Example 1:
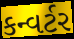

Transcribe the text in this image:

કન્વર્ટર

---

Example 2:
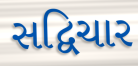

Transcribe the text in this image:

સદ્વિચાર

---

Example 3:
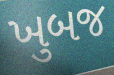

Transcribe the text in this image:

ખુબજ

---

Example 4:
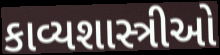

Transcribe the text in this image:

કાવ્યશાસ્ત્રીઓ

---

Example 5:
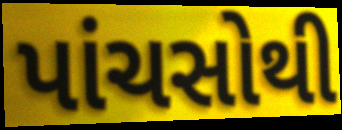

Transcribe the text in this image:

પાંચસોથી